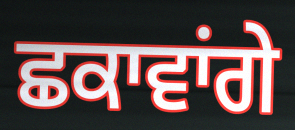
ਛਕਾਵਾਂਗੇ